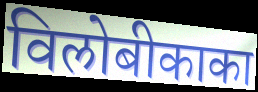
विलोबीकाका